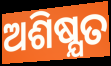
ଅଶିଷ୍ଯତ